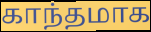
காந்தமாக